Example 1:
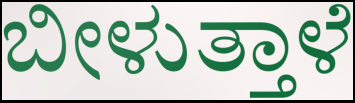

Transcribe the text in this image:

ಬೀಳುತ್ತಾಳೆ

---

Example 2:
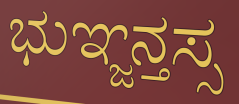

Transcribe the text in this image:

ಭುಞ್ಜನ್ತಸ್ಸ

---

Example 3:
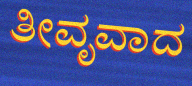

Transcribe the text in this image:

ತೀವೃವಾದ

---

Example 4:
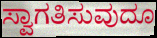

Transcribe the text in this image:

ಸ್ವಾಗತಿಸುವುದೂ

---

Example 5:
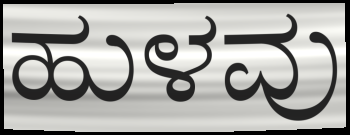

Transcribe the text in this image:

ಹುಳವು